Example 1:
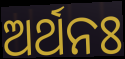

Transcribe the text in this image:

ଅର୍ଥନଃ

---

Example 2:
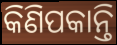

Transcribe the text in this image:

କିଣିପକାନ୍ତି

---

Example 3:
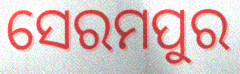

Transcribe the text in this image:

ସେରମପୁର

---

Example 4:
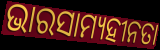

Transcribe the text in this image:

ଭାରସାମ୍ୟହୀନତା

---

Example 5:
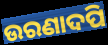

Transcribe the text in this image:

ଉରଣାଦପି